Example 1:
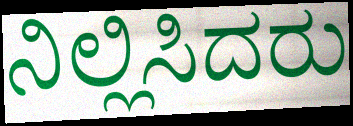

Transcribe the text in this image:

ನಿಲ್ಲಿಸಿದರು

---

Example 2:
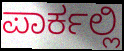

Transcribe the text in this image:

ಪಾರ್ಕಲ್ಲಿ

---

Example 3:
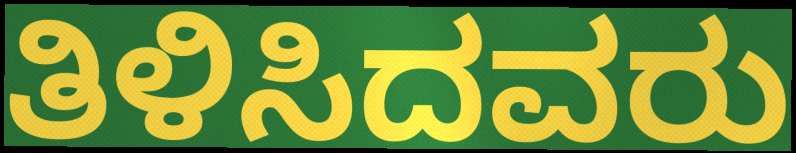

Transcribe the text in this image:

ತಿಳಿಸಿದವರು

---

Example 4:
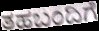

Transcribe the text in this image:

ತಹಬಂದಿಗೆ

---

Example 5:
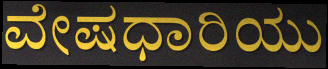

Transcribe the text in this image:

ವೇಷಧಾರಿಯು